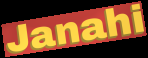
Janahi